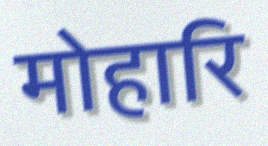
मोहारि